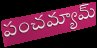
పంచమ్యామ్